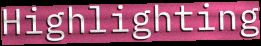
Highlighting